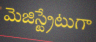
మెజిస్ట్రేటుగా